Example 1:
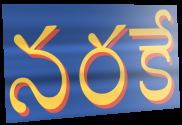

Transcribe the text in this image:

నరకే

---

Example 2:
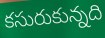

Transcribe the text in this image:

కసురుకున్నది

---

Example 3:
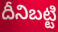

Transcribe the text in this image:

దీనిబట్టి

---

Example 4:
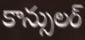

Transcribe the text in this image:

కాన్సులర్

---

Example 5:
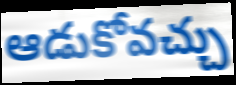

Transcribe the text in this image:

ఆడుకోవచ్చు